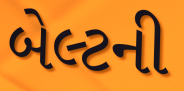
બેલ્ટની